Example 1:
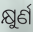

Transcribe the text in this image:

କ୍ଷୁର୍ଣ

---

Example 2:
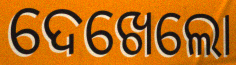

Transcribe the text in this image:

ଦେଖେଲୋ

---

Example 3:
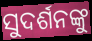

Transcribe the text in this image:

ସୁଦର୍ଶନଙ୍କୁ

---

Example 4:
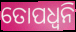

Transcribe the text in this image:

ତୋପଧ୍ୱନି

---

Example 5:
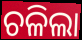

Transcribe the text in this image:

ଚଳିଲା